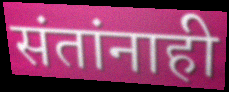
संतांनाही